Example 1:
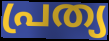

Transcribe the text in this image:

പ്രത്യ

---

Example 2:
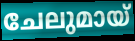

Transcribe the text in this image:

ചേലുമായ്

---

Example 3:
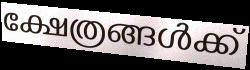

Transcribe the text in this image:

ക്ഷേത്രങ്ങൾക്ക്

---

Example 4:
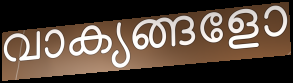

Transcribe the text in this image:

വാക്യങ്ങളോ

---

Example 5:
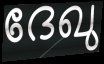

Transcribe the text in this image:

ദേഖു